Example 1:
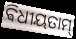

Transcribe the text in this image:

ଵିଧୀୟତାମ୍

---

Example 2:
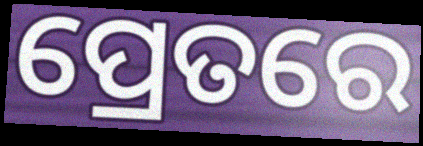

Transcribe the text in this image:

ପ୍ରେତରେ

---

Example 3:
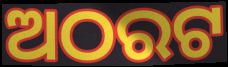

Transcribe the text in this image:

ଅଠରଟ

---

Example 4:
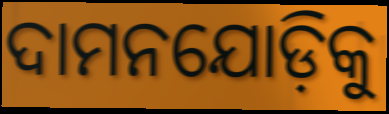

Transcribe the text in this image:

ଦାମନଯୋଡ଼ିକୁ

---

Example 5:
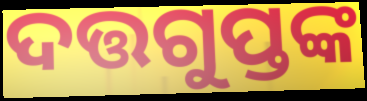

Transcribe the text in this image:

ଦତ୍ତଗୁପ୍ତଙ୍କ